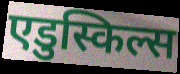
एडुस्किल्स